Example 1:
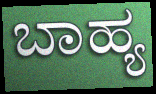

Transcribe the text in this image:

ಬಾಹ್ಯ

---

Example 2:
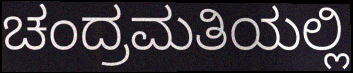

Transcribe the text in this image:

ಚಂದ್ರಮತಿಯಲ್ಲಿ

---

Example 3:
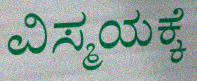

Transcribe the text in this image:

ವಿಸ್ಮಯಕ್ಕೆ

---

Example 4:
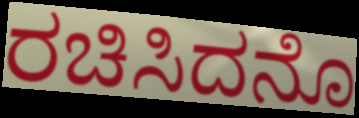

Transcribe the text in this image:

ರಚಿಸಿದನೊ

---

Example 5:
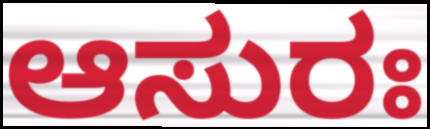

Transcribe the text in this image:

ಆಸುರಃ